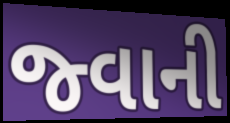
જ્વાની